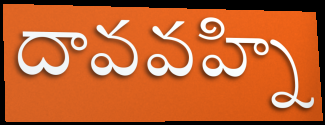
దావవహ్ని